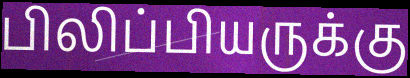
பிலிப்பியருக்கு